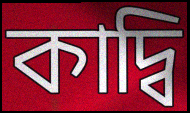
কাদ্বি